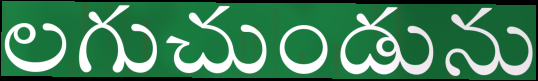
లగుచుండును